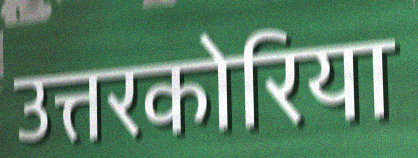
उत्तरकोरिया